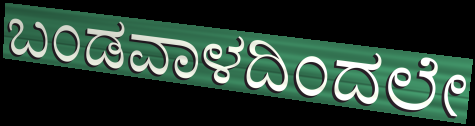
ಬಂಡವಾಳದಿಂದಲೇ